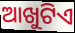
ଆଖୁଟିଏ